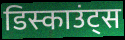
डिस्काउंट्स